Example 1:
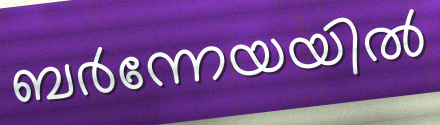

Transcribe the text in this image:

ബർന്നേയയിൽ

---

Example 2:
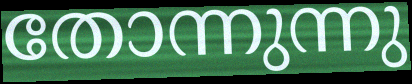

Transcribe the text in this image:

തോന്നുന്നു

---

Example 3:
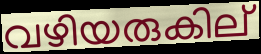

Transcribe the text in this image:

വഴിയരുകില്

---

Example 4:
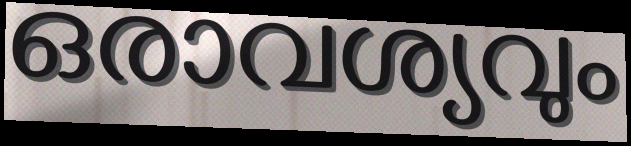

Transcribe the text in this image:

ഒരാവശ്യവും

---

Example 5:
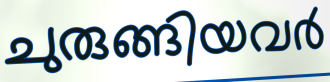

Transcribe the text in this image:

ചുരുങ്ങിയവർ